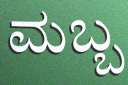
ಮಬ್ಬ